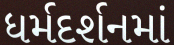
ધર્મદર્શનમાં